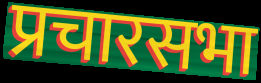
प्रचारसभा